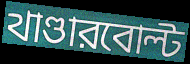
থাণ্ডারবোল্ট